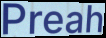
Preah